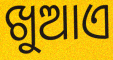
ଖୁଆଏ